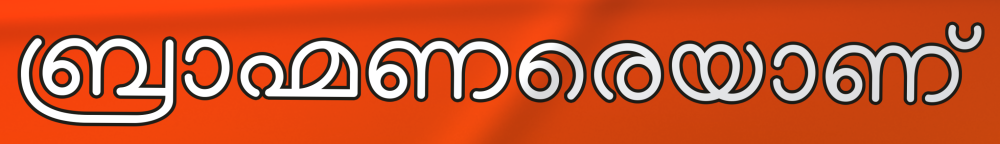
ബ്രാഹ്മണരെയാണ്